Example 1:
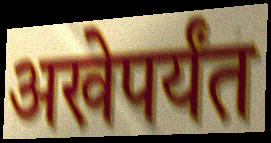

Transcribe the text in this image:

अखेपर्यंत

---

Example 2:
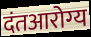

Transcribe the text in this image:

दंतआरोग्य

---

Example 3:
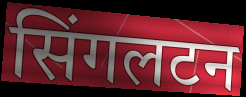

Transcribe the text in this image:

सिंगलटन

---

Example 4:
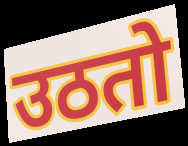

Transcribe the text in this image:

उठतो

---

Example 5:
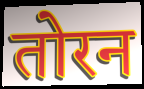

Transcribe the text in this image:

तोरन